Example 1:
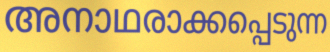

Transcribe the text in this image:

അനാഥരാക്കപ്പെടുന്ന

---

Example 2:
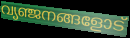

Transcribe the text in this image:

വ്യഞ്ജനങ്ങളോട്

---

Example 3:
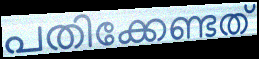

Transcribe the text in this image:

പതിക്കേണ്ടത്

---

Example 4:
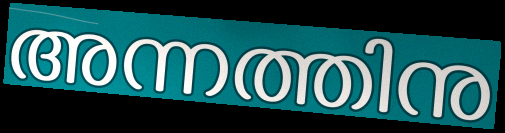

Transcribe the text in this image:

അന്നത്തിനു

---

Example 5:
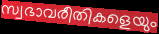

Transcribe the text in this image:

സ്വഭാവരീതികളെയും